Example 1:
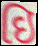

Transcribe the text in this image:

ઇિ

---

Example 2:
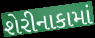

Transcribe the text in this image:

શેરીનાકામાં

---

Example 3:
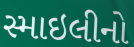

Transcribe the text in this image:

સ્માઇલીનો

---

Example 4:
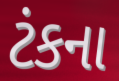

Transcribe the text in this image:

ટંકના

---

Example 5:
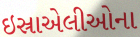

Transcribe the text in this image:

ઇસ્રાએલીઓના